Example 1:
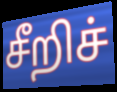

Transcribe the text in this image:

சீறிச்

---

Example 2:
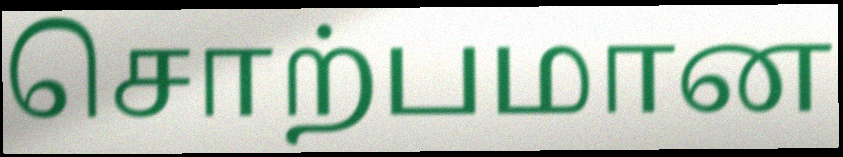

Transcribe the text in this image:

சொற்பமான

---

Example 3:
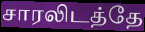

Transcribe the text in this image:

சாரலிடத்தே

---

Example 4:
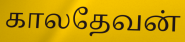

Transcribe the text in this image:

காலதேவன்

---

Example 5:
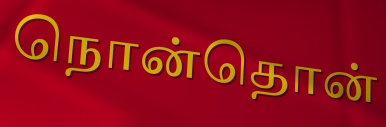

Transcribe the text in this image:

நொன்தொன்